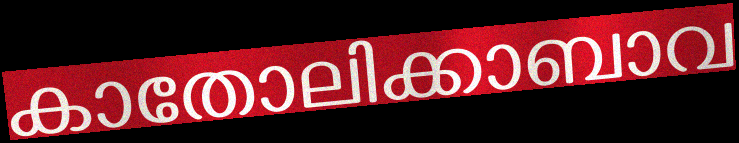
കാതോലിക്കാബാവ